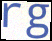
rg